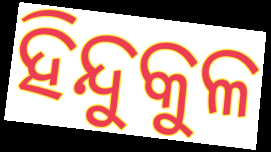
ହିନ୍ଦୁକୁଳ